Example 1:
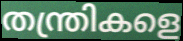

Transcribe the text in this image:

തന്ത്രികളെ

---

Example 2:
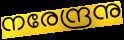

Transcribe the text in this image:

നരേന്ദ്രനു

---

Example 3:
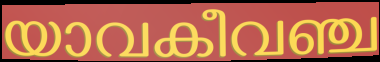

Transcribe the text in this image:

യാവകീവഞ്ച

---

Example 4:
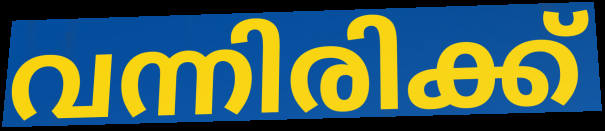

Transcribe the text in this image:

വന്നിരിക്ക്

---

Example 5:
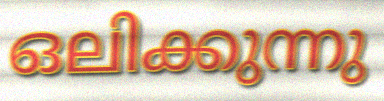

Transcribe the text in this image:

ഒലിക്കുന്നു